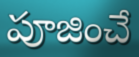
పూజించే